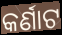
କର୍ଣାଟ